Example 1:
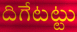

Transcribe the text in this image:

దిగేటట్టు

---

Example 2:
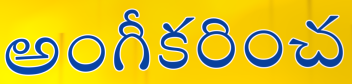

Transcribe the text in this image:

అంగీకరించ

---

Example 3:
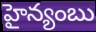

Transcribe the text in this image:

హైన్యంబు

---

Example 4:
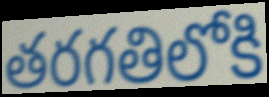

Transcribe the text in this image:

తరగతిలోకి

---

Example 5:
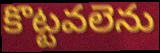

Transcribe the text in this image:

కొట్టవలెను